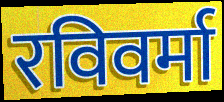
रविवर्मा